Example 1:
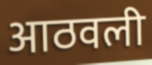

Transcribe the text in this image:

आठवली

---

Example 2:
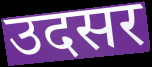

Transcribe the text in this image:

उदसर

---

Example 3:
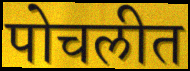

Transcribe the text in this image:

पोचलीत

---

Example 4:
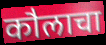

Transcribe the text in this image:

कौलाचा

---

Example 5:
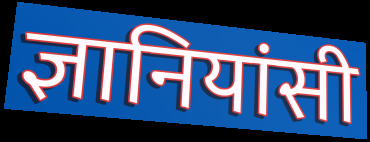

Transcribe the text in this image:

ज्ञानियांसी